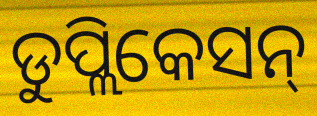
ଡୁପ୍ଲିକେସନ୍